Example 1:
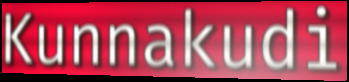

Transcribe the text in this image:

Kunnakudi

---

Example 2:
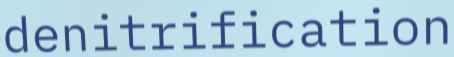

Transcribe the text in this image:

denitrification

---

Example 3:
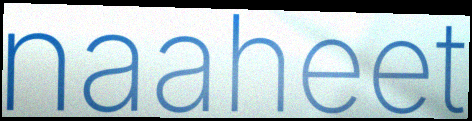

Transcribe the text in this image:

naaheet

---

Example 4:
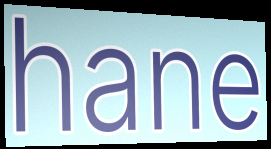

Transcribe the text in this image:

hane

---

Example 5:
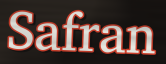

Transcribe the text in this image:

Safran